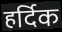
हर्दिक